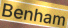
Benham